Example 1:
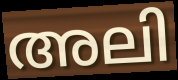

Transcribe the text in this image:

അലി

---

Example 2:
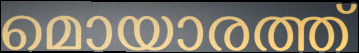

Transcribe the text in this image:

മൊയാരത്ത്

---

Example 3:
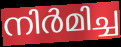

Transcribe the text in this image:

നിർമിച്ച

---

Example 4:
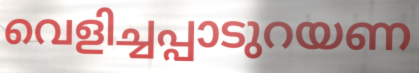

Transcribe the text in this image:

വെളിച്ചപ്പാടുറയണ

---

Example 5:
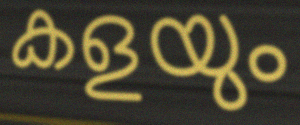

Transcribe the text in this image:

കളയും